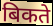
बिकते